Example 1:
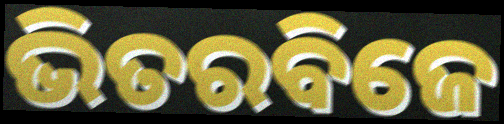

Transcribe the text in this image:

ଭିତରବିଜେ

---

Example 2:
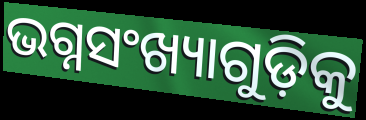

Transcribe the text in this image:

ଭଗ୍ନସଂଖ୍ୟାଗୁଡ଼ିକୁ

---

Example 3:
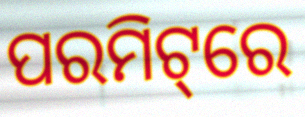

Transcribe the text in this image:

ପରମିଟ୍‌ରେ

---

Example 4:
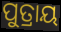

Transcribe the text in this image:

ପୁତ୍ରାୟ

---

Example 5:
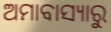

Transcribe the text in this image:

ଅମାବାସ୍ୟାରୁ